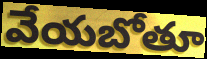
వేయబోతూ